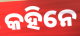
କହିନେ